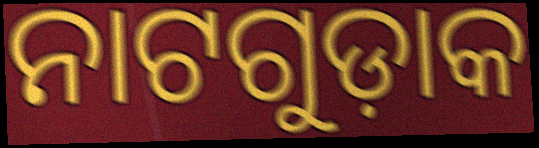
ନାଟଗୁଡ଼ାକ